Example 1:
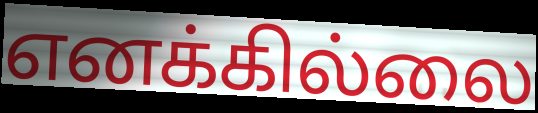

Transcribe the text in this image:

எனக்கில்லை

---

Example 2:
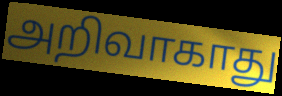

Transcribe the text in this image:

அறிவாகாது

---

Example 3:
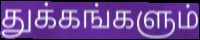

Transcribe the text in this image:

துக்கங்களும்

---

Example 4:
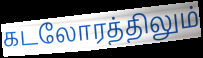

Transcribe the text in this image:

கடலோரத்திலும்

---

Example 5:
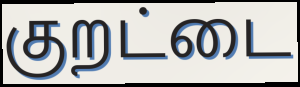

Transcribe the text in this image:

குறட்டை